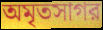
অমৃতসাগর